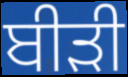
ਬੀਡ਼ੀ